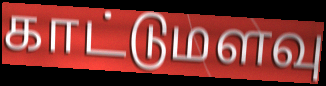
காட்டுமளவு